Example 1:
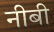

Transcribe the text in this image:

नीबी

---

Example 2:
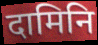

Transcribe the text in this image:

दामिनि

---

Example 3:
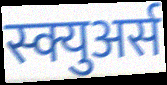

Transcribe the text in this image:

स्क्युअर्स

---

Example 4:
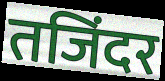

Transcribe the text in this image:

तजिंदर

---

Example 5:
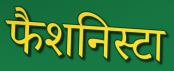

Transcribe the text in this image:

फैशनिस्टा